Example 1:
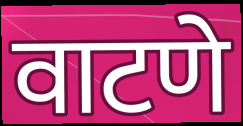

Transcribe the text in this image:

वाटणे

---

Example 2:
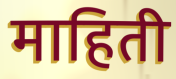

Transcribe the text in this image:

माहिती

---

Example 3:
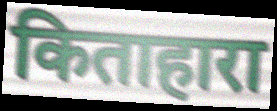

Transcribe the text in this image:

किताहारा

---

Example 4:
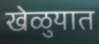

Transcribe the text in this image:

खेळुयात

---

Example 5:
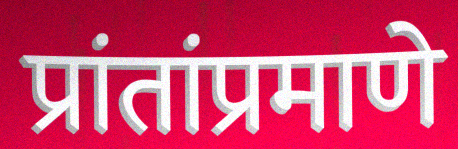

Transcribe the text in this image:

प्रांतांप्रमाणे